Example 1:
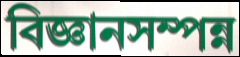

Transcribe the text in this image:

বিজ্ঞানসম্পন্ন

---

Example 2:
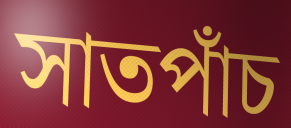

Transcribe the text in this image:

সাতপাঁচ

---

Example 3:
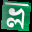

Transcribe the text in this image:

ভ্ল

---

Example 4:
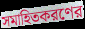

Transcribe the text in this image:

সমাহিতকরণের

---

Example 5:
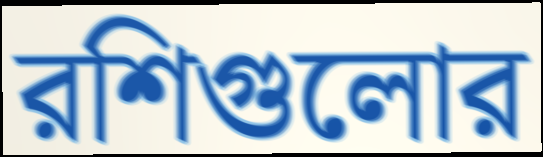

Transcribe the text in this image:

রশিগুলোর